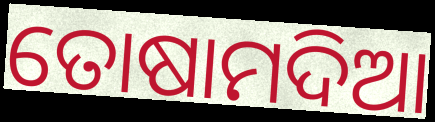
ତୋଷାମଦିଆ